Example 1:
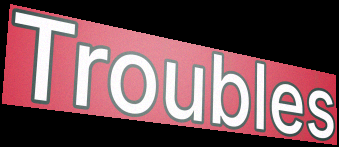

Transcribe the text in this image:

Troubles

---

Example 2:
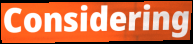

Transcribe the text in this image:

Considering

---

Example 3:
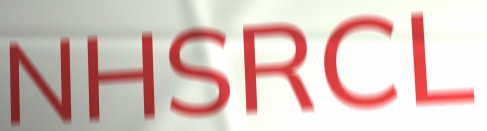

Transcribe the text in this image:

NHSRCL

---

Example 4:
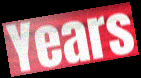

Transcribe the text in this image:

Years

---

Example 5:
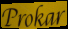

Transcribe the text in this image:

Prokar